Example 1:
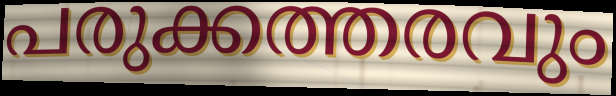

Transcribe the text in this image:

പരുക്കത്തരവും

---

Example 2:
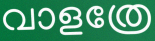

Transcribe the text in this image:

വാളത്രേ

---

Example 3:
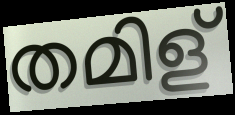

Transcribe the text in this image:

തമിള്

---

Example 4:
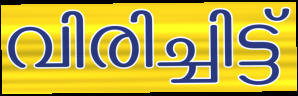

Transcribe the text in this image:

വിരിച്ചിട്ട്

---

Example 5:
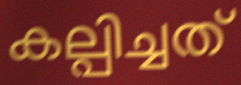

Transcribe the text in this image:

കല്പിച്ചത്